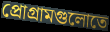
প্রোগ্রামগুলোতে